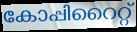
കോപ്പിറൈറ്റ്